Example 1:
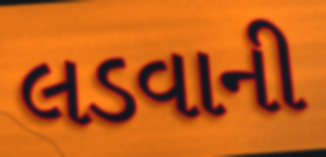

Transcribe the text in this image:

લડવાની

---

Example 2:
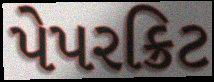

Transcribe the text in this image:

પેપરક્રિટ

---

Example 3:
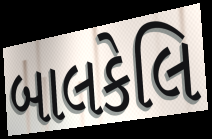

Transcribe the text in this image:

બાલકેલિ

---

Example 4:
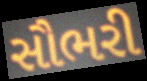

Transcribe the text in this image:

સૌભરી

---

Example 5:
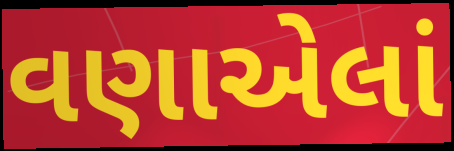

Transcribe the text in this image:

વણાએલાં